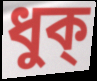
ধুক্